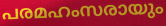
പരമഹംസരായും